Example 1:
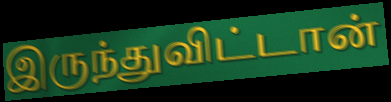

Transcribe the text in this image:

இருந்துவிட்டான்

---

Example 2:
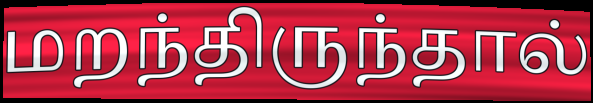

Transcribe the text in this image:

மறந்திருந்தால்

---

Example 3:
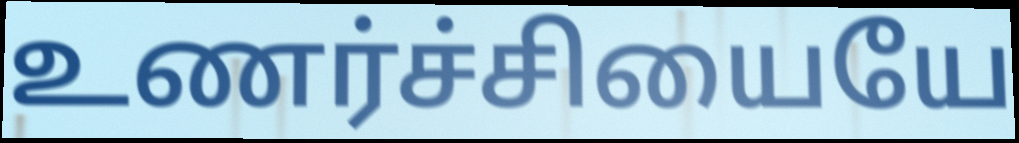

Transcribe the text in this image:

உணர்ச்சியையே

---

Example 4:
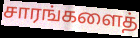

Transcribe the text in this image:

சாரங்களைத்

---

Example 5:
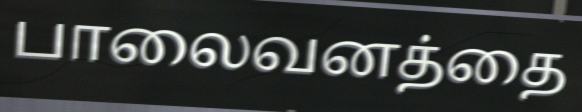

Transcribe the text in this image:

பாலைவனத்தை